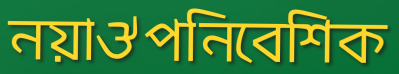
নয়াঔপনিবেশিক